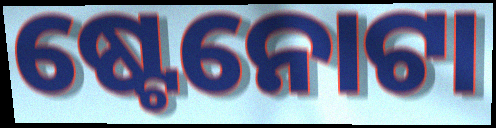
ଷ୍ଟେନୋଟା